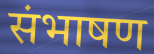
संभाषण